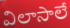
విలాసాలే